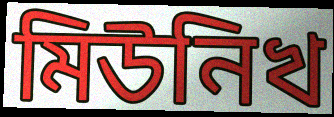
মিউনিখ